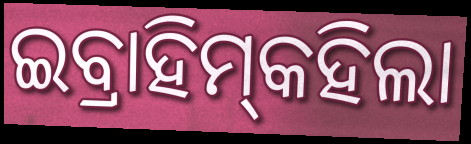
ଇବ୍ରାହିମ୍‌କହିଲା